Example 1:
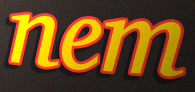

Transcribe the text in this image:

nem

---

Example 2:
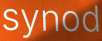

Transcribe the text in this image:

synod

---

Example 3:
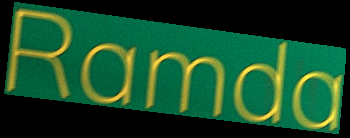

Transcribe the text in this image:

Ramda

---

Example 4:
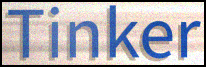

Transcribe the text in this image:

Tinker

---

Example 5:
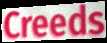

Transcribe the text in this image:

Creeds